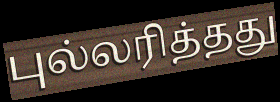
புல்லரித்தது